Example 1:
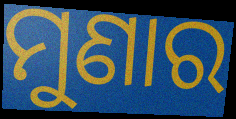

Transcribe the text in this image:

ମୁଣାର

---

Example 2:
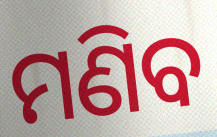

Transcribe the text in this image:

ମଣିବ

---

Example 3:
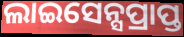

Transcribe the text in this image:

ଲାଇସେନ୍ସପ୍ରାପ୍ତ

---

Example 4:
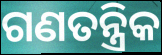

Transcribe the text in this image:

ଗଣତନ୍ତ୍ରିକ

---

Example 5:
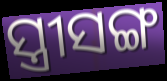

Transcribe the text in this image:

ସ୍ତ୍ରୀସଙ୍ଗ